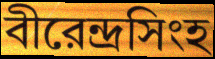
বীরেন্দ্রসিংহ